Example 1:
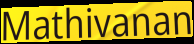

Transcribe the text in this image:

Mathivanan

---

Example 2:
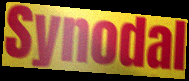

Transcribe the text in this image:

Synodal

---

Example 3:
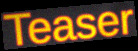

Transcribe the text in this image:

Teaser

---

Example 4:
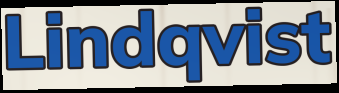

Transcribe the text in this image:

Lindqvist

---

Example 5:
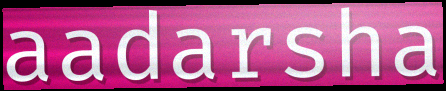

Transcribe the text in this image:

aadarsha